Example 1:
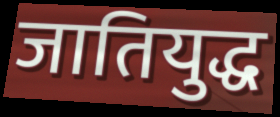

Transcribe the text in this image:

जातियुद्ध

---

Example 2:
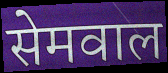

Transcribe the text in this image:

सेमवाल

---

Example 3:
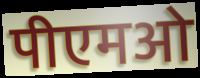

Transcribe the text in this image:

पीएमओ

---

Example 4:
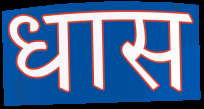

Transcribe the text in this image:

धास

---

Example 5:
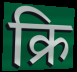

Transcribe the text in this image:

क्रि